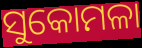
ସୁକୋମଳା